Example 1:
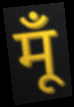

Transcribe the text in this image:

मूँ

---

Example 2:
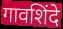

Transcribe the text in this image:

गावशिंदे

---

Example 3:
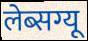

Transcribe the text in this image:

लेब्सग्यू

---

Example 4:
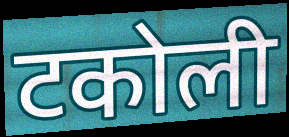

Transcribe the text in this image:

टकोली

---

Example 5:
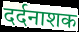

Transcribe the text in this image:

दर्दनाशक